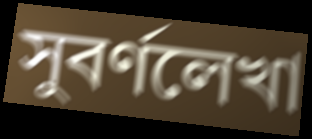
সুবর্ণলেখা